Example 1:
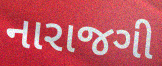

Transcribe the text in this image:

નારાજગી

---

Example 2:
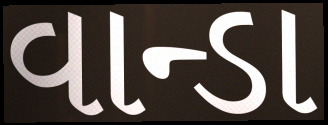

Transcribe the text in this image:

વાન્ડા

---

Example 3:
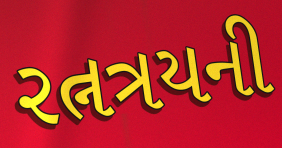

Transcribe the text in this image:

રત્નત્રયની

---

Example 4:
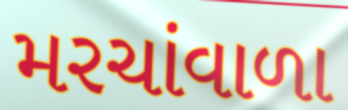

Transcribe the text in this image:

મરચાંવાળા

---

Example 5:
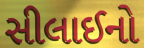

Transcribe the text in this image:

સીલાઈનો